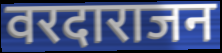
वरदाराजन